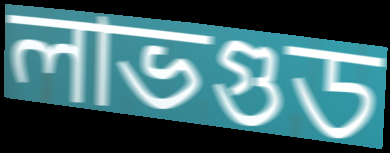
লাভগুড